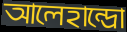
আলেহান্দ্রো